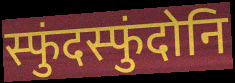
स्फुंदस्फुंदोनि